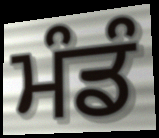
ਮੰਡੰ